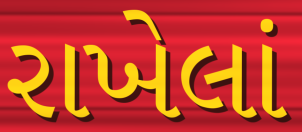
રાખેલાં